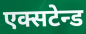
एक्सटेन्ड